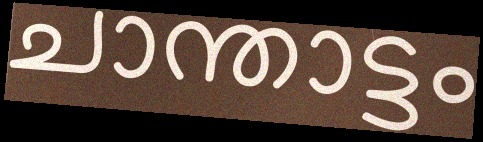
ചാന്താട്ടം